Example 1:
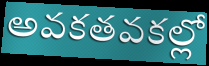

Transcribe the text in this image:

అవకతవకల్లో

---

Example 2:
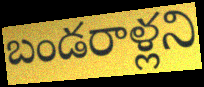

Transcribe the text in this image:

బండరాళ్లని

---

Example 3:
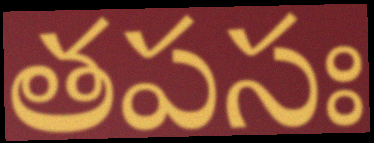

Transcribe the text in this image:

తపసః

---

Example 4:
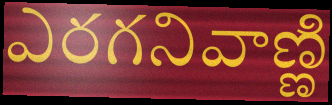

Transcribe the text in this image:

ఎరగనివాణ్ణి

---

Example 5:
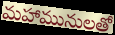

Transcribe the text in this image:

మహామునులతో